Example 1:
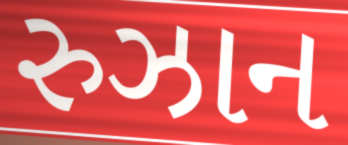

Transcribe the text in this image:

રુઝાન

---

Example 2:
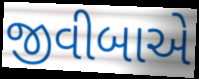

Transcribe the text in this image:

જીવીબાએ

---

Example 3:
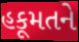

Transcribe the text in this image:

હકૂમતને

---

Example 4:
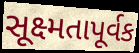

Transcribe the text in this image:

સૂક્ષ્મતાપૂર્વક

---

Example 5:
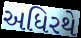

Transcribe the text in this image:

અધિરથે